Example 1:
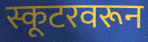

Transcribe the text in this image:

स्कूटरवरून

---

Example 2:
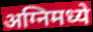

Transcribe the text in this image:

अग्निमध्ये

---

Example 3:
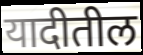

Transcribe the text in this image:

यादीतील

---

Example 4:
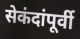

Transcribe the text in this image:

सेकंदांपूर्वी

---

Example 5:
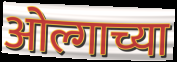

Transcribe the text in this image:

ओल्गाच्या